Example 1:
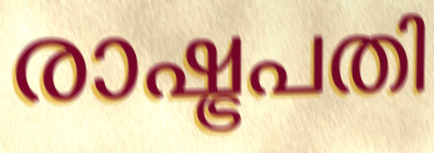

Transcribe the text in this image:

രാഷ്ട്രപതി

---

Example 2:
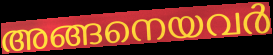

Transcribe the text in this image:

അങ്ങനെയവർ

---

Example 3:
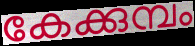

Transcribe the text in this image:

കേക്കുമ്പം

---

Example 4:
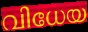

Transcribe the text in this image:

വിധേയ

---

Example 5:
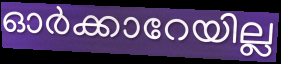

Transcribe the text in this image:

ഓർക്കാറേയില്ല